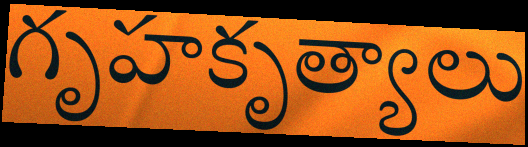
గృహకృత్యాలు